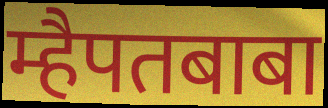
म्हैपतबाबा